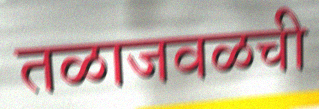
तळाजवळची